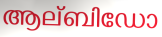
ആല്ബിഡോ